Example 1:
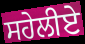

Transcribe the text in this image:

ਸਹੇਲੀਏ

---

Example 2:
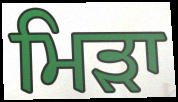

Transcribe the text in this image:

ਮਿੜਾ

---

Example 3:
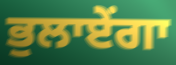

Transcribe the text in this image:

ਭੁਲਾਏਂਗਾ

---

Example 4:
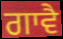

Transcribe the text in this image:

ਗਾਵੈ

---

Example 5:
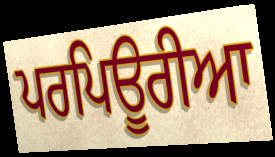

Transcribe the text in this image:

ਪਰਪਿਊਰੀਆ